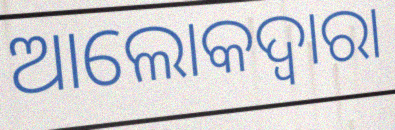
ଆଲୋକଦ୍ୱାରା